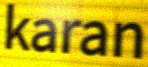
karan